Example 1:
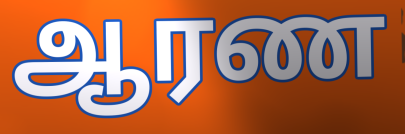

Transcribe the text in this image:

ஆரண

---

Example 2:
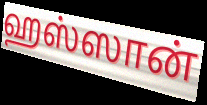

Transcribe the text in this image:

ஹஸ்ஸான்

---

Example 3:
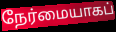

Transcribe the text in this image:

நேர்மையாகப்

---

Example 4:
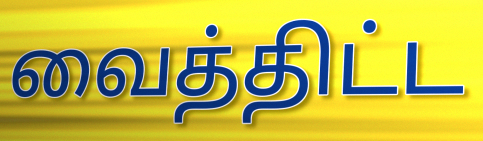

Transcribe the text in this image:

வைத்திட்ட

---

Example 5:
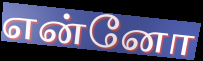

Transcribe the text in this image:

என்னோ